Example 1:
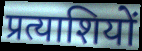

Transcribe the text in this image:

प्रत्‍याशियों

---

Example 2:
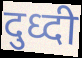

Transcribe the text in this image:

दुध्दी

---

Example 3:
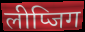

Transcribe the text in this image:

लीप्जिग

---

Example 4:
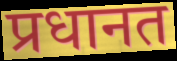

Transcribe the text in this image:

प्रधानत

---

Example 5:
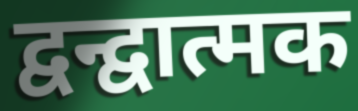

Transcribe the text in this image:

द्वन्द्वात्मक